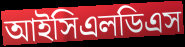
আইসিএলডিএস